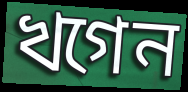
খগেন